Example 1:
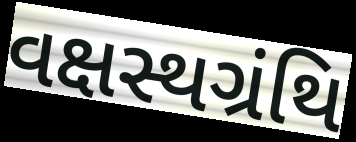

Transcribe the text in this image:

વક્ષસ્થગ્રંથિ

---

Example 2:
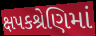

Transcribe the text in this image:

ક્ષપકશ્રેણિમાં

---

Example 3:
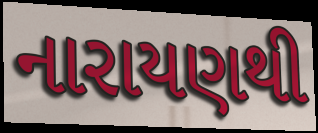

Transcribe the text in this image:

નારાયણથી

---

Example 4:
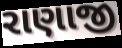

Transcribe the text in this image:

રાણાજી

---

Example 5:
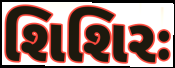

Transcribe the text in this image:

શિશિરઃ